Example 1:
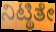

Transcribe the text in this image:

ನಿಟ್ಠಿತೇ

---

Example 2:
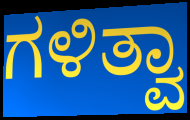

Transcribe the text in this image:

ಗಳಿತ್ವಾ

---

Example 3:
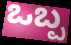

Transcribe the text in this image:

ಒಬ್ಪ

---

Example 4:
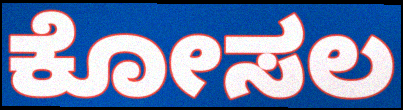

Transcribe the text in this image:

ಕೋಸಲ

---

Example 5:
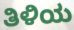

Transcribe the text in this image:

ತಿಳಿಯ